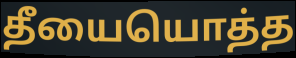
தீயையொத்த